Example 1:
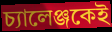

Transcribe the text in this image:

চ্যালেঞ্জকেই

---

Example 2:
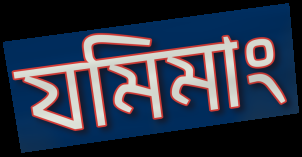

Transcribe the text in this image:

যমিমাং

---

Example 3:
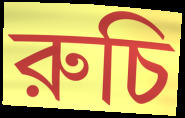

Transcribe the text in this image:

রুচি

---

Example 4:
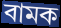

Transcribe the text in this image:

বামক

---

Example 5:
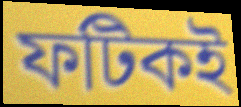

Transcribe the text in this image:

ফটিকই